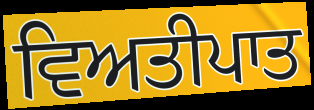
ਵਿਅਤੀਪਾਤ